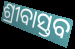
ଶ୍ରୀବାସ୍ତବ